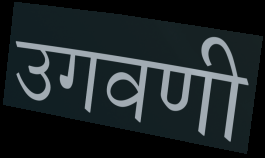
उगवणी